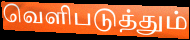
வெளிபடுத்தும்